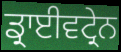
ਡ੍ਰਾਈਵਟ੍ਰੇਨ